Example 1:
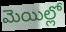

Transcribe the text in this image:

మెయిల్లో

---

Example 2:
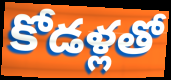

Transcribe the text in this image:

కోడళ్లతో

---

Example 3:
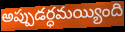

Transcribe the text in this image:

అప్పుడర్ధమయ్యింది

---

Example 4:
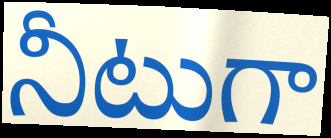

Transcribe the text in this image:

నీటుగా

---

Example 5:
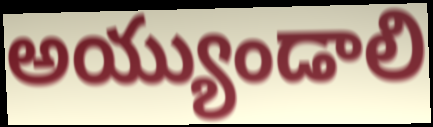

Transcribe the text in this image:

అయ్యుండాలి